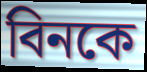
বিনকে